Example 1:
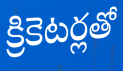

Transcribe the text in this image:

క్రికెటర్లతో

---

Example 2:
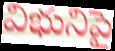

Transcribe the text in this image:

విభునిపై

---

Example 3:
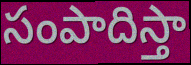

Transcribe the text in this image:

సంపాదిస్తా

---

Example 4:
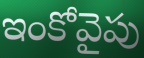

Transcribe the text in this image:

ఇంకోవైపు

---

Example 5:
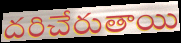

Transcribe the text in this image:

దరిచేరుతాయి